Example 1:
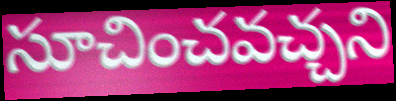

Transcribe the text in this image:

సూచించవచ్చని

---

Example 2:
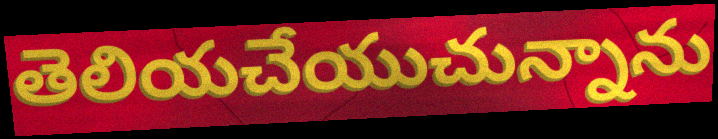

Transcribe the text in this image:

తెలియచేయుచున్నాను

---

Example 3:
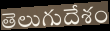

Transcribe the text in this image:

తెలుగుదేశం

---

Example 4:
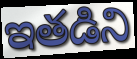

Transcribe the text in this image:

ఇతడిని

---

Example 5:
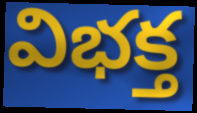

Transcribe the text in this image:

విభక్త